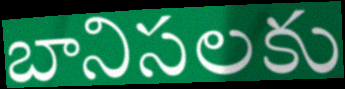
బానిసలకు